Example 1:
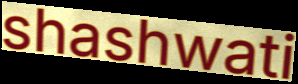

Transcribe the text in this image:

shashwati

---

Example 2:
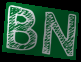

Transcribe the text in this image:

BN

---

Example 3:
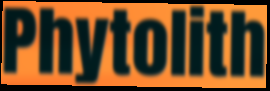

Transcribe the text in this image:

Phytolith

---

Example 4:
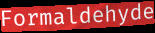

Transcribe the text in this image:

Formaldehyde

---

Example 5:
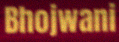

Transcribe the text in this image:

Bhojwani